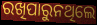
ରଖିପାରୁନଥିଲେ